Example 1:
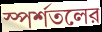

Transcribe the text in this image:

স্পর্শতলের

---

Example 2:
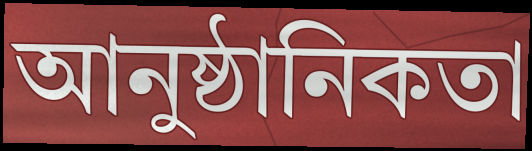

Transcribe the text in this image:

আনুষ্ঠানিকতা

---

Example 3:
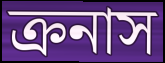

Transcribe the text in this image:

ক্রনাস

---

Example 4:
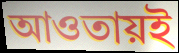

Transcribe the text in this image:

আওতায়ই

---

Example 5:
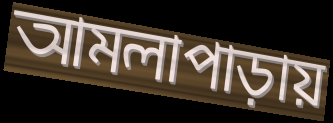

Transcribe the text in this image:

আমলাপাড়ায়